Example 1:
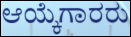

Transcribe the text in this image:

ಆಯ್ಕೆಗಾರರು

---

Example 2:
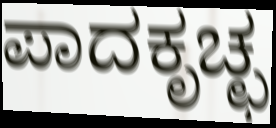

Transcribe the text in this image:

ಪಾದಕೃಚ್ಛ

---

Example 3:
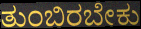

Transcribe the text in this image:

ತುಂಬಿರಬೇಕು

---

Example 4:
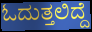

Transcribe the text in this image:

ಓದುತ್ತಲಿದ್ದೆ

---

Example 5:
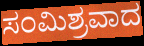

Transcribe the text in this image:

ಸಂಮಿಶ್ರವಾದ